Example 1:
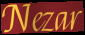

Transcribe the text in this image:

Nezar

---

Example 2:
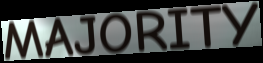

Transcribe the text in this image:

MAJORITY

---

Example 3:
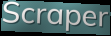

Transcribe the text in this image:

Scraper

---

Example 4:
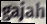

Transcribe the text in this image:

gajah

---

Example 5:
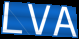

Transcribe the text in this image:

LVA